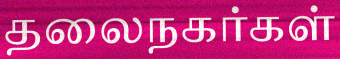
தலைநகர்கள்